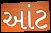
આંટ